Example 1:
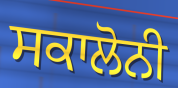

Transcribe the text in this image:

ਸਕਾਲੋਨੀ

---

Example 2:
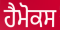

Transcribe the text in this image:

ਹੈਮੋਕਸ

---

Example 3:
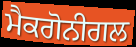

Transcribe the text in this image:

ਮੈਕਗੋਨੀਗਲ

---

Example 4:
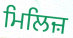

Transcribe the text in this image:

ਮਿਲਿਜ਼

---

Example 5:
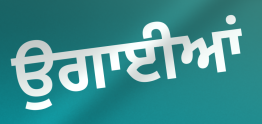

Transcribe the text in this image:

ਉਗਾਈਆਂ